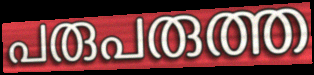
പരുപരുത്ത